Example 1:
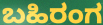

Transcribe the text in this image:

ಬಹಿರಂಗ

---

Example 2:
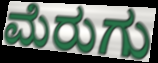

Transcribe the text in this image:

ಮೆರುಗು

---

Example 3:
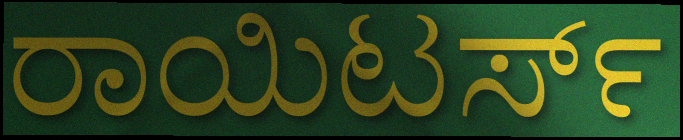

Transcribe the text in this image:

ರಾಯಿಟರ್ಸ್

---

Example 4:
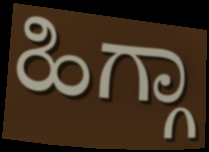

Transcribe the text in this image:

ಹಿಗ್ಗಾ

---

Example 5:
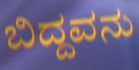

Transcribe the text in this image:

ಬಿದ್ದವನು